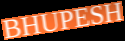
BHUPESH